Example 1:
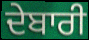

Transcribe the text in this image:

ਦੇਬਾਰੀ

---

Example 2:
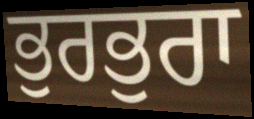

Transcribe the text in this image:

ਭੁਰਭੁਰਾ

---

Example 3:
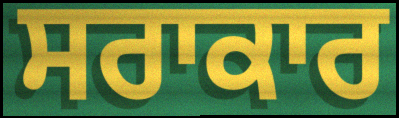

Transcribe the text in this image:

ਸਰਾਕਾਰ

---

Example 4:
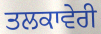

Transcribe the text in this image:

ਤਲਕਾਵੇਰੀ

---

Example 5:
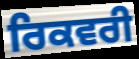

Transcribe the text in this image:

ਰਿਕਵਰੀ